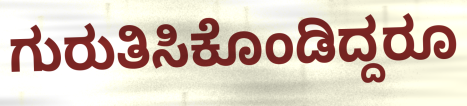
ಗುರುತಿಸಿಕೊಂಡಿದ್ದರೂ